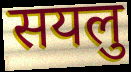
सयलु